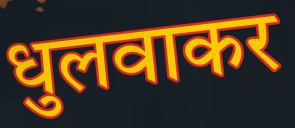
धुलवाकर